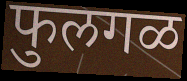
फुलगळ